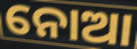
ନୋଆ